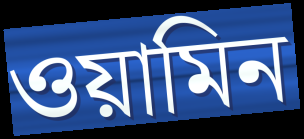
ওয়ামিন